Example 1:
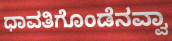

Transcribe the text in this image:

ಧಾವತಿಗೊಂಡೆನವ್ವಾ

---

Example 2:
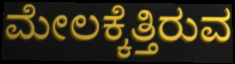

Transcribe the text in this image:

ಮೇಲಕ್ಕೆತ್ತಿರುವ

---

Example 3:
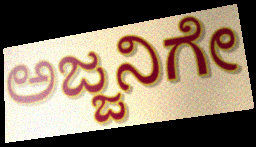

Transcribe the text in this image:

ಅಜ್ಜನಿಗೇ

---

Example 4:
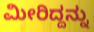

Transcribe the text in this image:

ಮೀರಿದ್ದನ್ನು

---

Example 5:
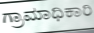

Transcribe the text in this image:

ಗ್ರಾಮಾಧಿಕಾರಿ